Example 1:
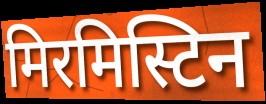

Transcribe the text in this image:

मिरमिस्टिन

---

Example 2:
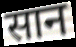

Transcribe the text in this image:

सान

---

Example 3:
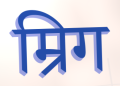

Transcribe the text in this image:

म्रिग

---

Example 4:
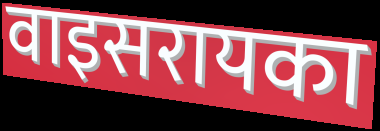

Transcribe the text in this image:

वाइसरायका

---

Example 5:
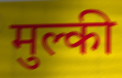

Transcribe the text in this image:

मुल्की